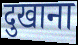
दुखाना